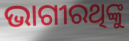
ଭାଗୀରଥିଙ୍କୁ